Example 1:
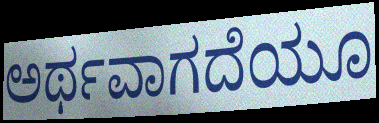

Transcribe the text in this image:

ಅರ್ಥವಾಗದೆಯೂ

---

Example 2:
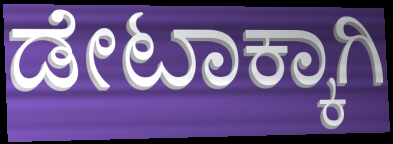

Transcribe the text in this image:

ಡೇಟಾಕ್ಕಾಗಿ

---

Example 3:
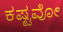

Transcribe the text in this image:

ಕಷ್ಟವೋ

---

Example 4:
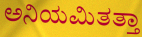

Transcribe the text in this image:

ಅನಿಯಮಿತತ್ತಾ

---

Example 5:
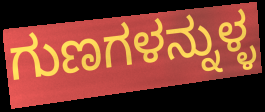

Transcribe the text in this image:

ಗುಣಗಳನ್ನುಳ್ಳ